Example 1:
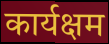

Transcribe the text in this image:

कार्यक्षम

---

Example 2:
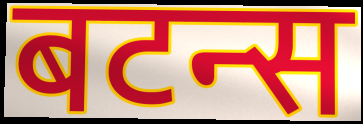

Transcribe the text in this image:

बटन्स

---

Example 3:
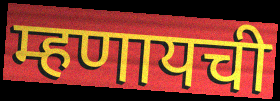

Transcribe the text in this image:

म्हणायची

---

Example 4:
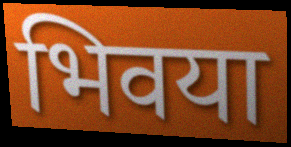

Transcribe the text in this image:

भिवया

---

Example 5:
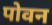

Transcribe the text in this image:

पोवन